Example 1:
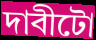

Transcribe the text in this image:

দাবীটো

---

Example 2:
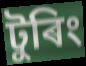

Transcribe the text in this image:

টুৰিং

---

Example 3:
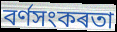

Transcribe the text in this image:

বৰ্ণসংকৰতা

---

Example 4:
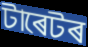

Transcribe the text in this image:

টাৰেটৰ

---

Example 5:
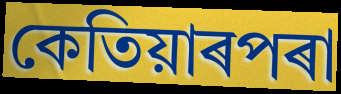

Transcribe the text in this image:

কেতিয়াৰপৰা